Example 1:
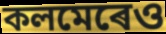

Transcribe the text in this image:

কলমেৰেও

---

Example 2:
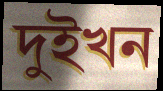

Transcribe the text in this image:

দুইখন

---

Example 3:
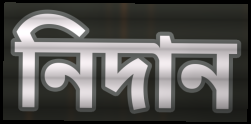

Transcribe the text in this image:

নিদান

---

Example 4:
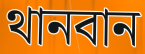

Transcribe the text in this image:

থানবান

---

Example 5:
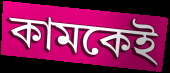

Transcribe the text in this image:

কামকেই